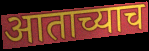
आताच्याच